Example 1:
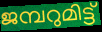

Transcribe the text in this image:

ജമ്പറുമിട്ട്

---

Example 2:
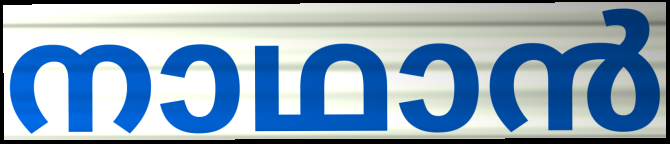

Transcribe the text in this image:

നാഥാൻ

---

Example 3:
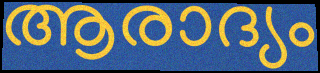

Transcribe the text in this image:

ആരാദ്യം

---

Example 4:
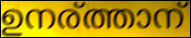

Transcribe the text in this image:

ഉനര്ത്താന്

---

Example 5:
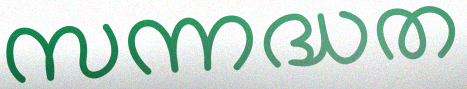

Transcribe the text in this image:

സന്നദ്ധത